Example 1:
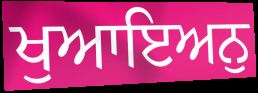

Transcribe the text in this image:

ਖੁਆਇਅਨੁ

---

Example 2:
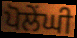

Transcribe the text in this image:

ਪੋਲੇਂਘੀ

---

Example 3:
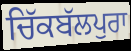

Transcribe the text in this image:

ਚਿੱਕਬੱਲਪੁਰਾ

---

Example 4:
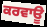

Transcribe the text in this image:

ਕਰਵਾਊ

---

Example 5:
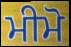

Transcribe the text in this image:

ਮੀਮੋ